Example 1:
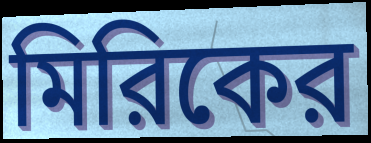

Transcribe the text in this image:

মিরিকের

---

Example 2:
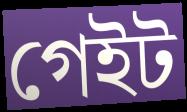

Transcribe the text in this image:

গেইট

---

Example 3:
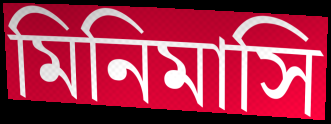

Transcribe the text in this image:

মিনিমাসি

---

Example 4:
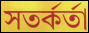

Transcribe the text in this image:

সতর্কর্তা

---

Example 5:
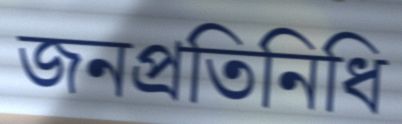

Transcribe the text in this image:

জনপ্রতিনিধি